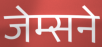
जेम्सने